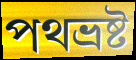
পথভ্রষ্ট